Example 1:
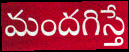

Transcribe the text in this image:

మందగిస్తే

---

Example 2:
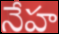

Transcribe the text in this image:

నేహ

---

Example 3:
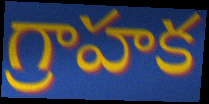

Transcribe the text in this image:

గ్రాహక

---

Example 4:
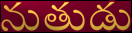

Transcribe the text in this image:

నుతుడు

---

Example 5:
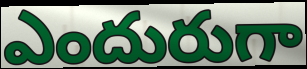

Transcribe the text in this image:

ఎందురుగా